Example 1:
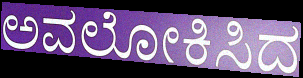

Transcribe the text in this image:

ಅವಲೋಕಿಸಿದ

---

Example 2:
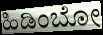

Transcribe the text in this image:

ಹಿಡಿಂಬೋ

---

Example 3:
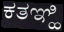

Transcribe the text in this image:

ಕತಞ್ಹಿ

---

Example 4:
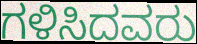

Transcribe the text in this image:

ಗಳಿಸಿದವರು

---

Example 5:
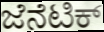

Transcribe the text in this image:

ಜೆನೆಟಿಕ್